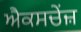
ਐਕਸਚੇਂਜ਼